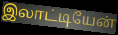
இலாட்டியேன்